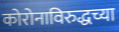
कोरोनाविरुद्धच्या